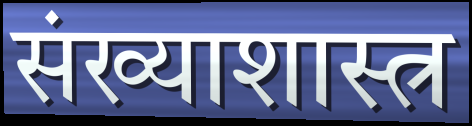
संख्याशास्त्र